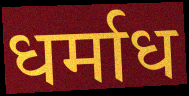
धर्माध